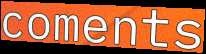
coments